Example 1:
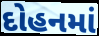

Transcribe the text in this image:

દોહનમાં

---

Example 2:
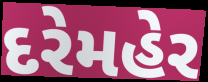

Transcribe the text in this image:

દરેમહેર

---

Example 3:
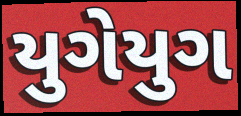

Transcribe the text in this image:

યુગેયુગ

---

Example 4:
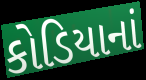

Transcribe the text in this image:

કોડિયાનાં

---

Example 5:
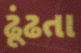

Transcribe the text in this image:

ઢૂંઢતા